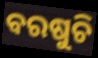
ବରଷୁଚି